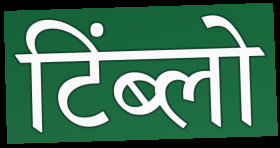
टिंब्लो